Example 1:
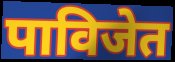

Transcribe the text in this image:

पाविजेत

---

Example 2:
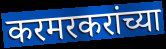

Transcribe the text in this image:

करमरकरांच्या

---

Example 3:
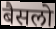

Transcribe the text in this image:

बैसलो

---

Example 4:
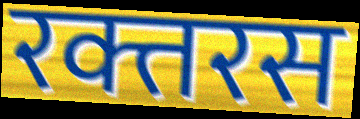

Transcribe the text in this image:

रक्तरस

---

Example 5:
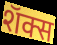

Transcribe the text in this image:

शॅक्स